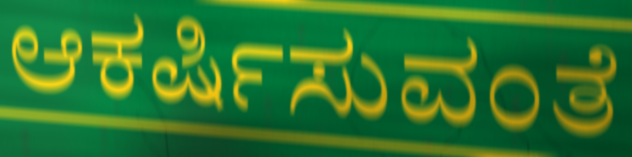
ಆಕರ್ಷಿಸುವಂತೆ